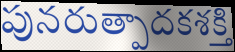
పునరుత్పాదకశక్తి